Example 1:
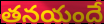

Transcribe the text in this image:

తనయందే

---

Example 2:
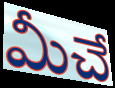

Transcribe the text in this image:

మీచే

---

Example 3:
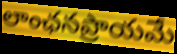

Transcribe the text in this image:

లాంఛనప్రాయమే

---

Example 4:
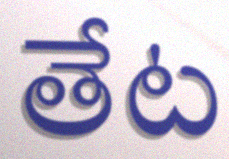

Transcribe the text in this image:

తేట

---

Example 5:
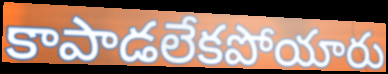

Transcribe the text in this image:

కాపాడలేకపోయారు